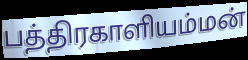
பத்திரகாளியம்மன்